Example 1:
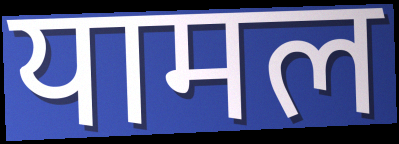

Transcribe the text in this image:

यामल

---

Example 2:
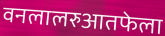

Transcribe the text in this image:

वनलालरुआतफेला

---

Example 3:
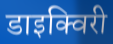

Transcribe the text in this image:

डाइक्विरी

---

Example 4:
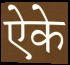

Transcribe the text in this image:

ऐके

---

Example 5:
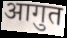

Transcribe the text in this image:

आगुत